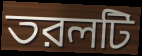
তরলটি